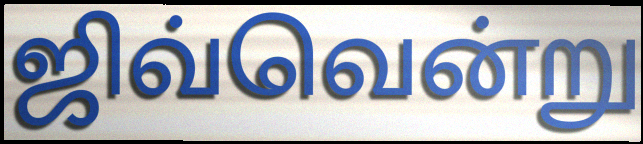
ஜிவ்வென்று